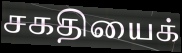
சகதியைக்